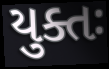
યુક્તઃ